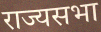
राज्‍यसभा